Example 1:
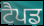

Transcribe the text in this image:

ਟੈਪਡ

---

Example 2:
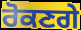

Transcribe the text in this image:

ਰੋਕਣਗੇ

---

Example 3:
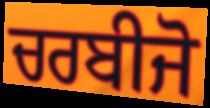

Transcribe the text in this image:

ਚਰਬੀਜੋ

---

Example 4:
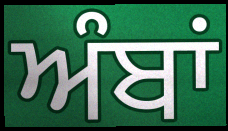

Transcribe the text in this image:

ਅੰਬਾਂ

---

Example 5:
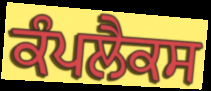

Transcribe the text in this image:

ਕੰਪਲੈਕਸ